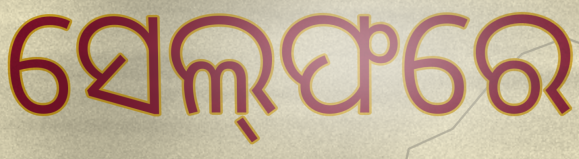
ସେଲ୍‌ଫରେ